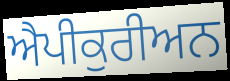
ਐਪੀਕੁਰੀਅਨ